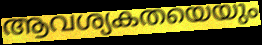
ആവശ്യകതയെയും